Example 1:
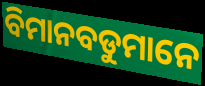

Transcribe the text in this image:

ବିମାନବଡୁମାନେ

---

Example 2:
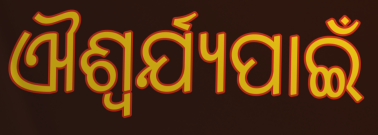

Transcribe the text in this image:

ଐଶ୍ୱର୍ଯ୍ୟପାଇଁ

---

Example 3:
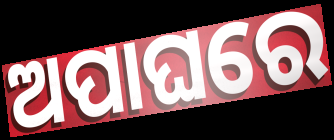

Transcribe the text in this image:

ଅପାଘରେ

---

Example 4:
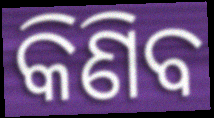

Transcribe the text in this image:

କିଣିବ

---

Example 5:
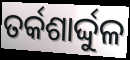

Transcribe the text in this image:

ତର୍କଶାର୍ଦ୍ଦୁଳ